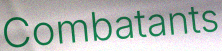
Combatants